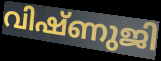
വിഷ്ണുജി